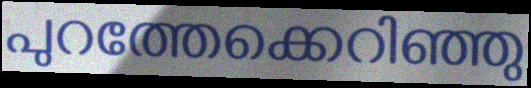
പുറത്തേക്കെറിഞ്ഞു